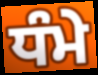
ਧੰਮੇ